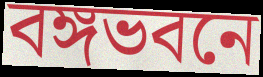
বঙ্গভবনে